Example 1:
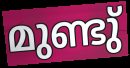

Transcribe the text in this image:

മുണ്ടു്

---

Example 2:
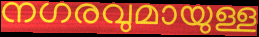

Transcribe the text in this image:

നഗരവുമായുള്ള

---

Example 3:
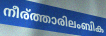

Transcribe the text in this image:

നീര്ത്താരിലംബിക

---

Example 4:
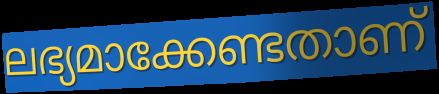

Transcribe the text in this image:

ലഭ്യമാക്കേണ്ടതാണ്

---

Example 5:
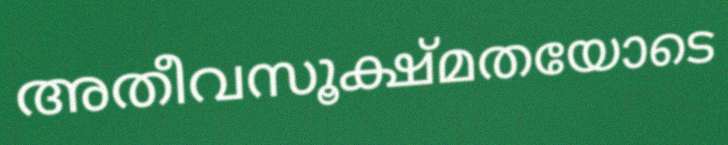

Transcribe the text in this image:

അതീവസൂക്ഷ്മതയോടെ